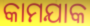
କାମଯାକ